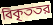
বিকৃততর